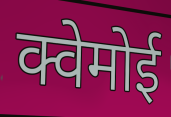
क्वेमोई